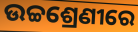
ଉଚ୍ଚଶ୍ରେଣୀରେ